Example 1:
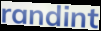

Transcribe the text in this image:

randint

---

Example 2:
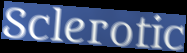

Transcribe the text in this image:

Sclerotic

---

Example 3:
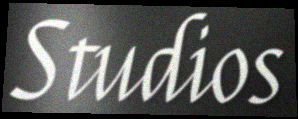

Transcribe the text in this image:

Studios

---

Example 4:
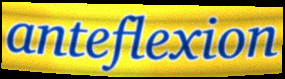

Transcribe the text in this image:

anteflexion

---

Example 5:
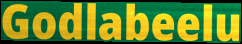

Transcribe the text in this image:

Godlabeelu